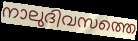
നാലുദിവസത്തെ